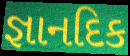
જ્ઞાનદિક